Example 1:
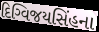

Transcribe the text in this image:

દિગ્વિજયસિંહના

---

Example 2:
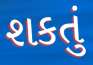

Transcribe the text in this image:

શકતું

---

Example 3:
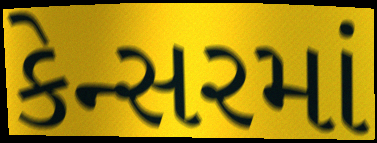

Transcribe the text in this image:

કેન્સરમાં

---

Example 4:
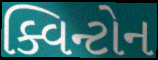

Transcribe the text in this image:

ક્વિન્ટોન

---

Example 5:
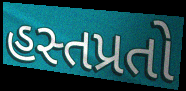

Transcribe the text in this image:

હસ્તપ્રતો